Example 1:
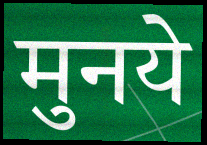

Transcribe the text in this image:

मुनये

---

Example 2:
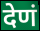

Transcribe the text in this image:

देणं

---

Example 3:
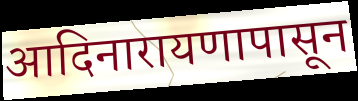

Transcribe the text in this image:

आदिनारायणापासून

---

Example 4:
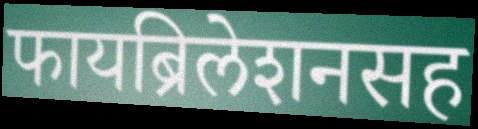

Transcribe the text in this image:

फायब्रिलेशनसह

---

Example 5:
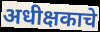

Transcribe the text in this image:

अधीक्षकाचे